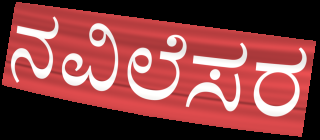
ನವಿಲೆಸರ